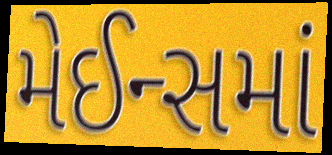
મેઈન્સમાં